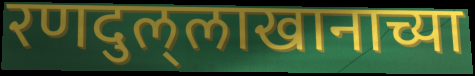
रणदुल्लाखानाच्या